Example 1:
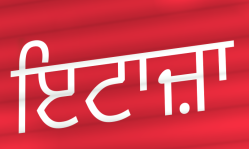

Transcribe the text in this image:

ਇਟਾਜ਼ਾ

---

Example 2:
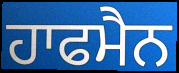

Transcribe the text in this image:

ਹਾਫਮੈਨ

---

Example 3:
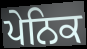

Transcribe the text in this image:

ਪੇਨਿਕ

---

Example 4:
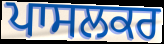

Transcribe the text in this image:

ਪਾਸਲਕਰ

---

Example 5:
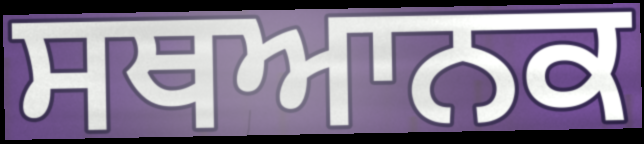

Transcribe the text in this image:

ਸਥਆਨਕ